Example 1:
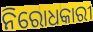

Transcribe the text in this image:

ନିରୋଧକାରୀ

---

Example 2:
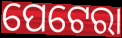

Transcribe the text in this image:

ପେଟେରା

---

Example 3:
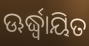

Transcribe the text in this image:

ଊର୍ଦ୍ଧ୍ୱାୟିତ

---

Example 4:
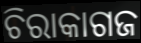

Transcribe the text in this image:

ଚିରାକାଗଜ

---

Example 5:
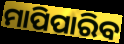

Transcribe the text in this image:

ମାପିପାରିବ